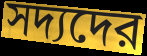
সদ্যদের